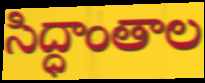
సిద్ధాంతాల